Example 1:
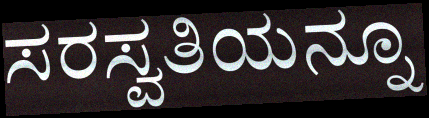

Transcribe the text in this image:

ಸರಸ್ವತಿಯನ್ನೂ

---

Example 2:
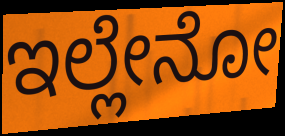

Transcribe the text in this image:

ಇಲ್ಲೇನೋ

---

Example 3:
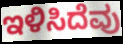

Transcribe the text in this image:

ಇಳಿಸಿದೆವು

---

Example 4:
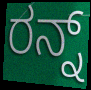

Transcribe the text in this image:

ರನ್ನ್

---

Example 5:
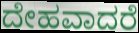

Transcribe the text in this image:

ದೇಹವಾದರೆ